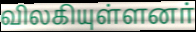
விலகியுள்ளனர்